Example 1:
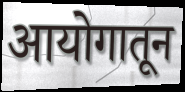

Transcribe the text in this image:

आयोगातून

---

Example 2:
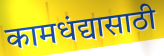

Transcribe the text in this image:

कामधंद्यासाठी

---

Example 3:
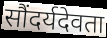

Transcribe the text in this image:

सौंदर्यदेवता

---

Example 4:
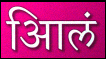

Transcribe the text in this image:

आिलं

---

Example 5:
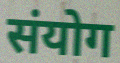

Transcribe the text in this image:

संयोग